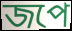
জপে